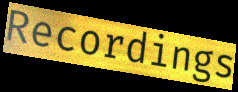
Recordings